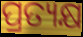
ପ୍ରତ୍ଯକ୍ଷ